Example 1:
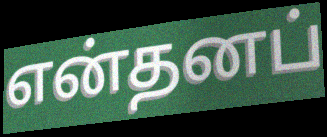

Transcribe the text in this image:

என்தனப்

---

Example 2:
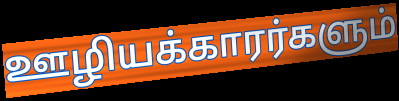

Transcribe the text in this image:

ஊழியக்காரர்களும்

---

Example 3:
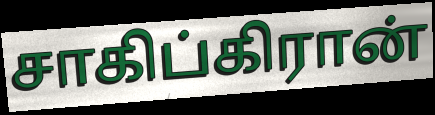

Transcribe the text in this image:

சாகிப்கிரான்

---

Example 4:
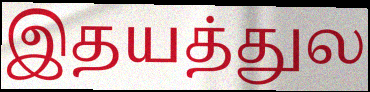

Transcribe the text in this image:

இதயத்துல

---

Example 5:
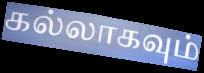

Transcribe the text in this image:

கல்லாகவும்